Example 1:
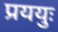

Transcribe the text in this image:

प्रययुः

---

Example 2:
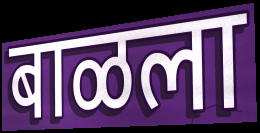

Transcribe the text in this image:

बाळला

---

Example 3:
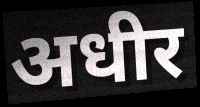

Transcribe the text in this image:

अधीर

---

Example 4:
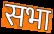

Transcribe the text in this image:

सभा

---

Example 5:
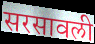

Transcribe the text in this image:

सरसावली